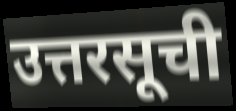
उत्तरसूची